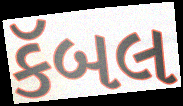
કૅબલ